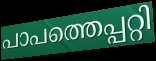
പാപത്തെപ്പറ്റി